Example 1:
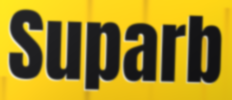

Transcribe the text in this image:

Suparb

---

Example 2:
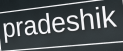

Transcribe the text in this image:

pradeshik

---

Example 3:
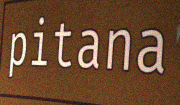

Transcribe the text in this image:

pitana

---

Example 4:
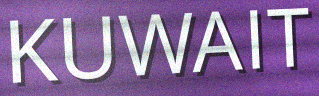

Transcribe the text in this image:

KUWAIT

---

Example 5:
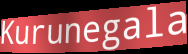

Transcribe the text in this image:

Kurunegala